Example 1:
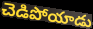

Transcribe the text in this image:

చెడిపోయాడు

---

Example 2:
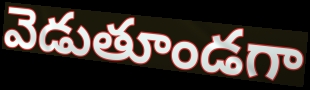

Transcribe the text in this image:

వెడుతూండగా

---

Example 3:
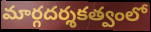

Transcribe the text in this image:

మార్గదర్శకత్వంలో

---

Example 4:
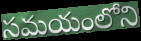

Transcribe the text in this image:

సమయంలోని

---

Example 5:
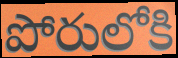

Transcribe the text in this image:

పోరులోకి